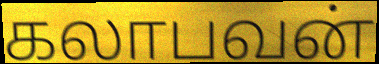
கலாபவன்